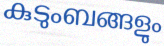
കുടുംബങ്ങളും